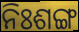
ନିଃଶଙ୍ଗ